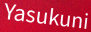
Yasukuni